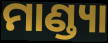
ମାଣ୍ଡ୍ୟା